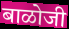
बाळोजी